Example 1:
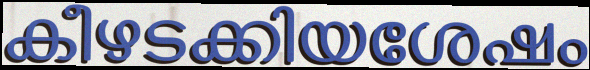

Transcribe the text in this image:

കീഴടക്കിയശേഷം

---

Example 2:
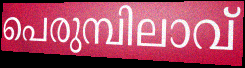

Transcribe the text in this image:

പെരുമ്പിലാവ്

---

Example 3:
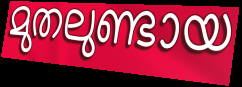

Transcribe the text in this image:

മുതലുണ്ടായ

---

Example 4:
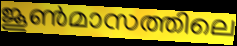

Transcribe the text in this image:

ജൂൺമാസത്തിലെ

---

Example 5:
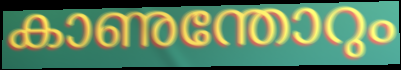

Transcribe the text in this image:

കാണുന്തോറും